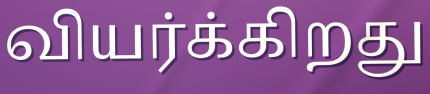
வியர்க்கிறது